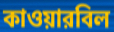
কাওয়ারবিল